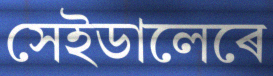
সেইডালেৰে